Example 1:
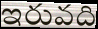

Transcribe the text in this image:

ఇరువది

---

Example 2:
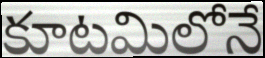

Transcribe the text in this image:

కూటమిలోనే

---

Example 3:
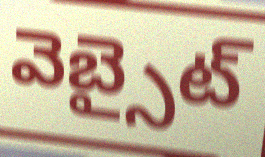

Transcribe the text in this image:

వెబ్సైట్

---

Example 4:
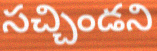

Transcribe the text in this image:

సచ్చిండని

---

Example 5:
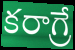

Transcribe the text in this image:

కరాగ్రే